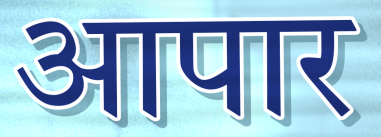
आपार